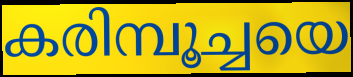
കരിമ്പൂച്ചയെ